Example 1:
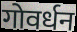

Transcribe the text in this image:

गोवर्धन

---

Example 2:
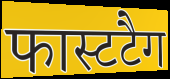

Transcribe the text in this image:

फास्टटैग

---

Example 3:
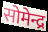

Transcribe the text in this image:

सोमेन्द्र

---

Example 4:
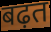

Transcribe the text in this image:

बढ़त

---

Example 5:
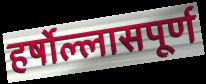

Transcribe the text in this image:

हर्षोल्लासपूर्ण